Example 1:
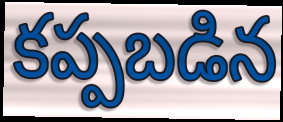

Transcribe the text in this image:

కప్పబడిన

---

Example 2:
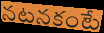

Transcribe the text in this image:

నటనకంటే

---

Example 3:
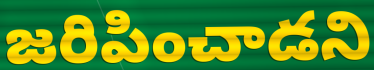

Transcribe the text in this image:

జరిపించాడని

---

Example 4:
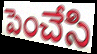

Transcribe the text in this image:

పెంచేసి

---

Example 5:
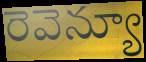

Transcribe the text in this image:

రెవెన్యూ